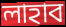
লাহাব